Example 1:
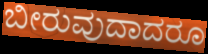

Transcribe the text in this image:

ಬೀರುವುದಾದರೂ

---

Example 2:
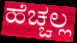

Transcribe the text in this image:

ಹೆಚ್ಚಲ್ಲ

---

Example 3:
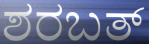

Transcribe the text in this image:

ಶರಬತ್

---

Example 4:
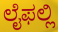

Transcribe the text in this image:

ಲೈಫಲ್ಲಿ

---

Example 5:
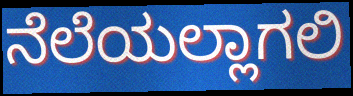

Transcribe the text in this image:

ನೆಲೆಯಲ್ಲಾಗಲಿ